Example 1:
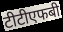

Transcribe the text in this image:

टीटीएफबी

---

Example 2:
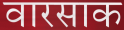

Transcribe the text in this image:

वारसाक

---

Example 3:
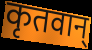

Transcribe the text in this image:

कृतवान्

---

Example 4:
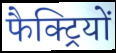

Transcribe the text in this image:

फैक्ट्रियों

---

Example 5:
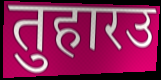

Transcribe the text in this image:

तुहारउ